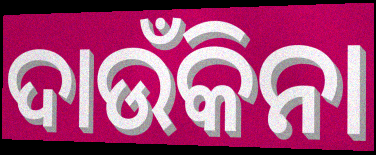
ଦାଉଁକିନା